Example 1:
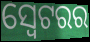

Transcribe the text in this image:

ସ୍ୱେଟରର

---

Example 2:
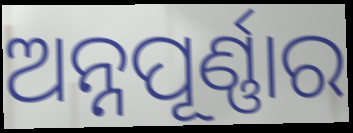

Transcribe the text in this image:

ଅନ୍ନପୂର୍ଣ୍ଣାର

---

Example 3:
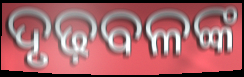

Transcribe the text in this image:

ଦୃଢ଼ବଳଙ୍କ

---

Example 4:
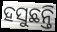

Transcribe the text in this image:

ହସୁଛନ୍ତି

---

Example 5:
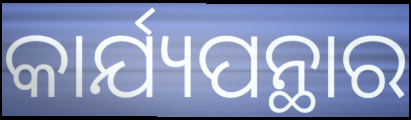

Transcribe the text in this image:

କାର୍ଯ୍ୟପନ୍ଥାର